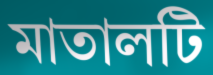
মাতালটি